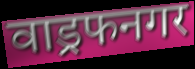
वाड्रफनगर